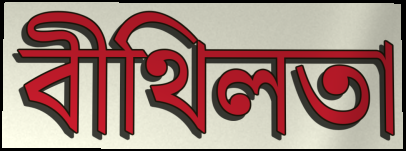
বীথিলতা